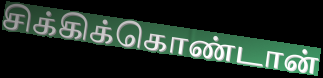
சிக்கிக்கொண்டான்